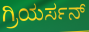
ಗ್ರಿಯರ್ಸನ್